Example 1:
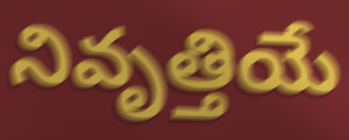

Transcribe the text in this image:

నివృత్తియే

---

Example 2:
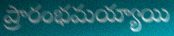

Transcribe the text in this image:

ప్రారంభమయ్యాయి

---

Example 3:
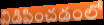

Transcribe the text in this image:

విడిపించడంలో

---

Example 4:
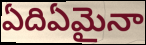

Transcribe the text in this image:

ఏదిఏమైనా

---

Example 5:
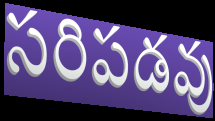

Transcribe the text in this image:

సరిపడవు